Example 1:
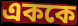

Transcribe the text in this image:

এককে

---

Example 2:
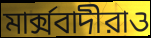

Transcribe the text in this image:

মার্ক্সবাদীরাও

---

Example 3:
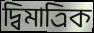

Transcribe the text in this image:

দ্বিমাত্রিক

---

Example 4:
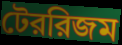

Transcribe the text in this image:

টেররিজম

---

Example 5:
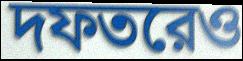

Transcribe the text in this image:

দফতরেও